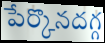
పేర్కొనదగ్గ